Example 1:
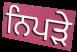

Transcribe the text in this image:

ਨਿਪੜੇ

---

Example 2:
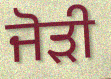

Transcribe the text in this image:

ਜੋਡ਼ੀ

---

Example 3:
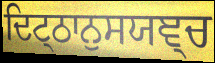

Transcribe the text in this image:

ਦਿਟ੍ਠਾਨੁਸਯਞ੍ਚ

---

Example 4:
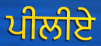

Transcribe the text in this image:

ਪੀਲੀਏ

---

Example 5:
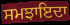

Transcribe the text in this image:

ਸਮਝਾਇਦਾ